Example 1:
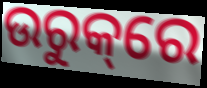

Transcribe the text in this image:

ଉରୁକ୍‌ରେ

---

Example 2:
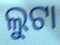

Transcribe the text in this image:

ଲୁଟା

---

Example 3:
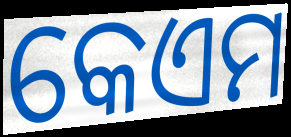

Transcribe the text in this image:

କେଏମ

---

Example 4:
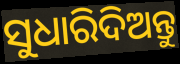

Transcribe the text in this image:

ସୁଧାରିଦିଅନ୍ତୁ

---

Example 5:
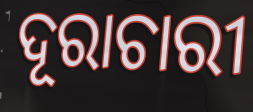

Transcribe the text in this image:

ଦୂରାଚାରୀ